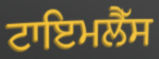
ਟਾਇਮਲੈੱਸ